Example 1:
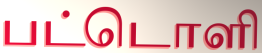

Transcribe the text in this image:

பட்டொளி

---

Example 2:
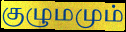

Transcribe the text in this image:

குழுமமும்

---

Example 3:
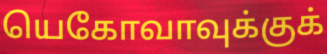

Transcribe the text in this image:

யெகோவாவுக்குக்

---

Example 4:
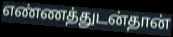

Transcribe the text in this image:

எண்ணத்துடன்தான்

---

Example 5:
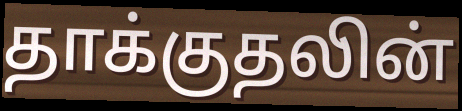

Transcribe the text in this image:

தாக்குதலின்